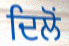
ਦਿਲੋਂ